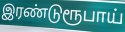
இரண்டுரூபாய்